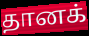
தானக்